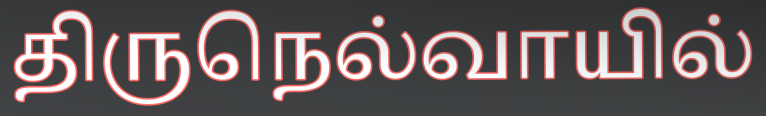
திருநெல்வாயில்